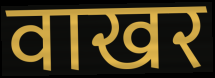
वाखर